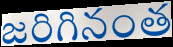
జరిగినంత